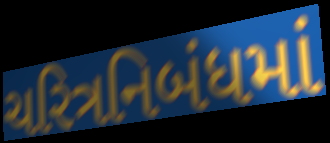
ચરિત્રનિબંધમાં